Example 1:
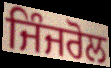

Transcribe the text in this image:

ਜਿੰਜਰੋਲ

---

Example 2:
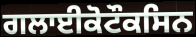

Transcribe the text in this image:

ਗਲਾਈਕੋਟੌਕਸਿਨ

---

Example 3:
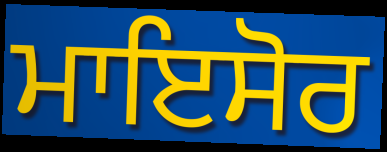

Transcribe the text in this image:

ਮਾਇਸੋਰ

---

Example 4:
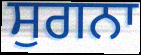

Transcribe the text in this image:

ਸੁਗਨਾ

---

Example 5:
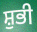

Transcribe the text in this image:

ਸ਼ੁਭੀ